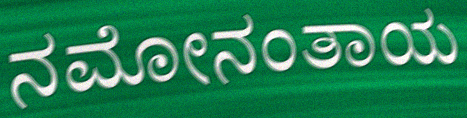
ನಮೋನಂತಾಯ